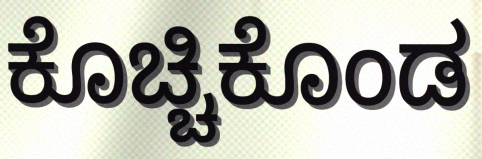
ಕೊಚ್ಚಿಕೊಂಡ